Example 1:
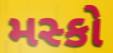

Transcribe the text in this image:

મસ્કો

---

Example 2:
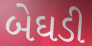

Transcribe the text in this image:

બેઘડી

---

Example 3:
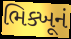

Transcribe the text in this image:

ભિક્ખૂનં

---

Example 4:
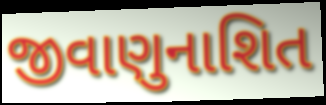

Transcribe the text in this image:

જીવાણુનાશિત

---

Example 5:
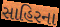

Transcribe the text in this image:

સાહિરના